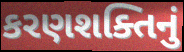
કરણશક્તિનું